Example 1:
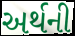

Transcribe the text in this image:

અર્થની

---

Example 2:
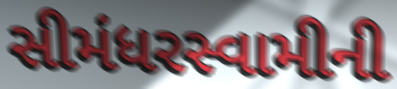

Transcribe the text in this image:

સીમંધરસ્વામીની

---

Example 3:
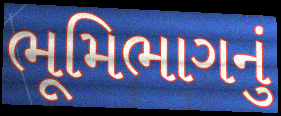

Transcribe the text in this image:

ભૂમિભાગનું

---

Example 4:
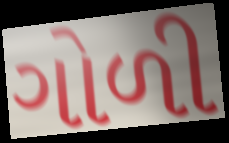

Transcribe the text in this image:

ગોળી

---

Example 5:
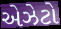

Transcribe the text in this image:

એઝેટો